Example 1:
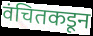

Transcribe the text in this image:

वंचितकडून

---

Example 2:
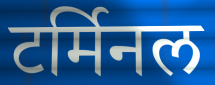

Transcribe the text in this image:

टर्मिनल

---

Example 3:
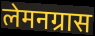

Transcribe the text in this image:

लेमनग्रास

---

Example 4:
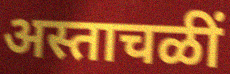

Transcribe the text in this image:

अस्ताचळीं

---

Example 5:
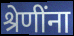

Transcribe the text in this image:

श्रेणींना